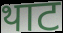
थाट